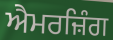
ਐਮਰਜ਼ਿੰਗ